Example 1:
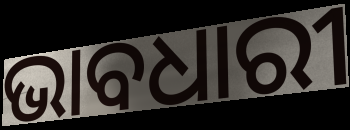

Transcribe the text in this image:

ଭାବଧାରୀ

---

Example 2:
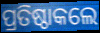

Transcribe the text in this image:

ପ୍ରତିଷ୍ଠାକଲେ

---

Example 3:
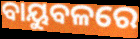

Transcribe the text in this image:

ବାୟୁବଳରେ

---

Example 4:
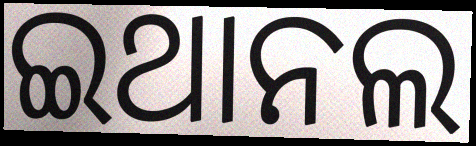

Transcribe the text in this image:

ଇଥାନଲ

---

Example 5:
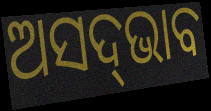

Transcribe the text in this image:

ଅସଦ୍‌ଭାବ